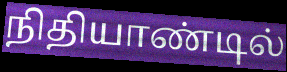
நிதியாண்டில்